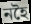
নহৈ